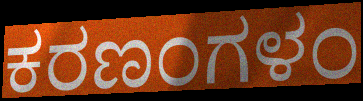
ಕರಣಂಗಳಂ